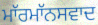
ਮਾੱਰਮਾੱਨਸਵਾਦ